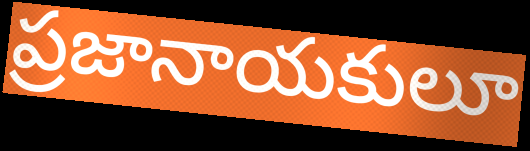
ప్రజానాయకులూ